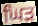
ਘਿੜ